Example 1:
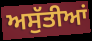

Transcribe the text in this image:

ਅਸੁੱਤੀਆਂ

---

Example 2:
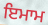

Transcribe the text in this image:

ਇਮਾਮ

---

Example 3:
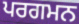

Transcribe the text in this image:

ਪਰਗਮਨ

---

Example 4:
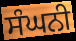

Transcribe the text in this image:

ਸੰਘਨੀ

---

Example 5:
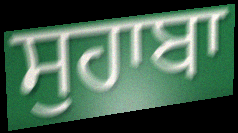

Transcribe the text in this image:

ਸੁਹਾਬਾ